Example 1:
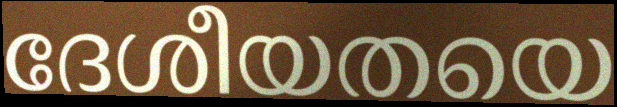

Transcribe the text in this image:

ദേശീയതയെ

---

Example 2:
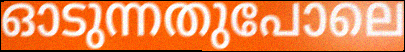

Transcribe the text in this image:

ഓടുന്നതുപോലെ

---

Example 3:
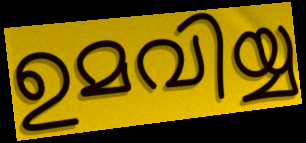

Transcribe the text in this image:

ഉമവിയ്യ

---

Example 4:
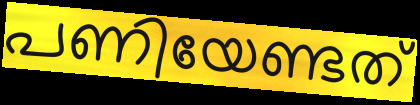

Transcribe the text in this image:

പണിയേണ്ടത്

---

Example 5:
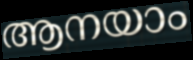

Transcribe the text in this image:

ആനയാം